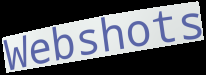
Webshots